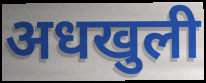
अधखुली